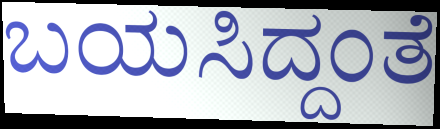
ಬಯಸಿದ್ದಂತೆ